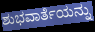
ಶುಭವಾರ್ತೆಯನ್ನು